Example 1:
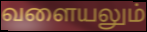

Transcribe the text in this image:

வளையலும்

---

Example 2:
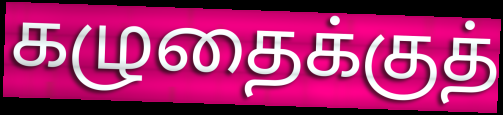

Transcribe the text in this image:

கழுதைக்குத்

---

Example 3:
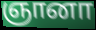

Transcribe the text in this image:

ஞானா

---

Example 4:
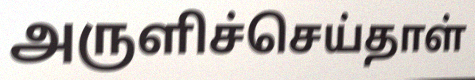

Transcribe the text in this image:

அருளிச்செய்தாள்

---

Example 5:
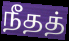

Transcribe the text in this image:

நீதத்